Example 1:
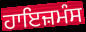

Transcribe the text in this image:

ਹਾਇਜ਼ਮੰਸ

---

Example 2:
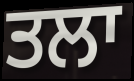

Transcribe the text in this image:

ਤਲਾ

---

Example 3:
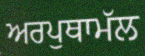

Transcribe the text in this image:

ਅਰਪੁਥਾਮੱਲ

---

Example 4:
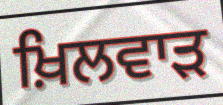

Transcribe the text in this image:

ਖ਼ਿਲਵਾੜ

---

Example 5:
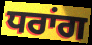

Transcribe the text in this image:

ਧਰਾਂਗ